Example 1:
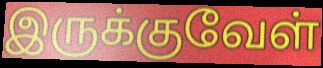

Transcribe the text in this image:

இருக்குவேள்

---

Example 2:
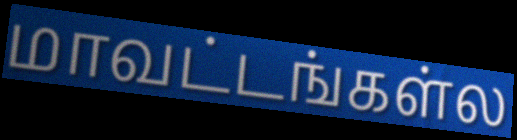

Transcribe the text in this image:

மாவட்டங்கள்ல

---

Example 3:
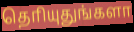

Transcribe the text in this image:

தெரியுதுங்களா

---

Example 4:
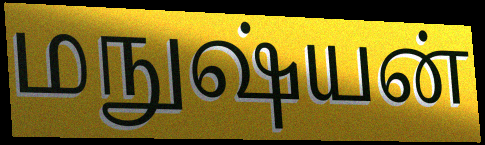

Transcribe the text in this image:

மநுஷ்யன்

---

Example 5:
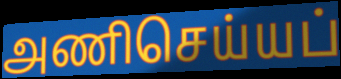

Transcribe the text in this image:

அணிசெய்யப்